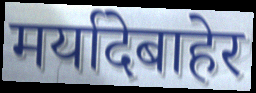
मर्यादेबाहेर